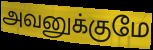
அவனுக்குமே